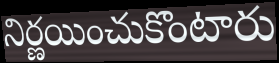
నిర్ణయించుకొంటారు